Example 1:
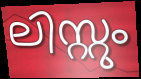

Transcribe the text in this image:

ലിസ്റ്റും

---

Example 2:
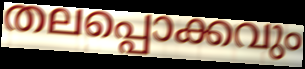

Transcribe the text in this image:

തലപ്പൊക്കവും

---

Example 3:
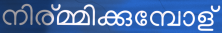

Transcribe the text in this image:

നിര്മ്മിക്കുമ്പോള്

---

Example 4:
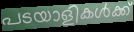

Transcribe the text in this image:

പടയാളികൾക്ക്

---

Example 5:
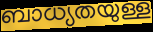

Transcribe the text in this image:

ബാധ്യതയുള്ള